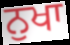
ਨੁਖਾ